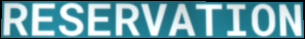
RESERVATION